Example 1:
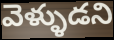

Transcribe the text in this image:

వెళ్ళుడని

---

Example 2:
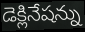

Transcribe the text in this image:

డెక్లినేషన్ను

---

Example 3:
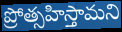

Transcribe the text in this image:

ప్రోత్సహిస్తామని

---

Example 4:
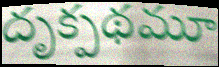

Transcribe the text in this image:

దృక్పథమూ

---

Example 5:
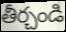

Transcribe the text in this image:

తీర్చండి